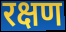
रक्षण